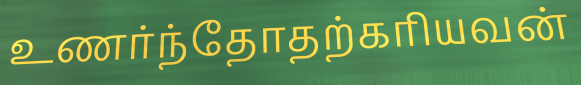
உணர்ந்தோதற்கரியவன்